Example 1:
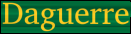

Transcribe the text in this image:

Daguerre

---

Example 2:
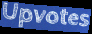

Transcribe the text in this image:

Upvotes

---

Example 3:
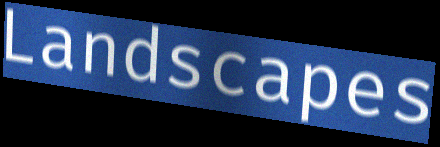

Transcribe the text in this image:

Landscapes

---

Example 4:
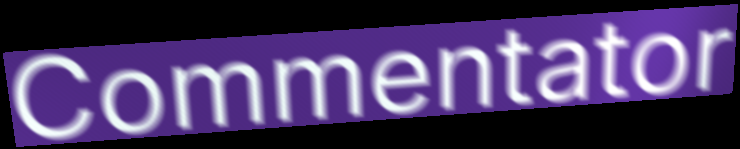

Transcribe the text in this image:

Commentator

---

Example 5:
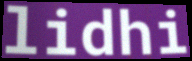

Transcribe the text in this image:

lidhi